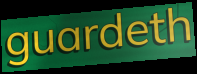
guardeth